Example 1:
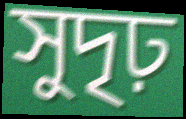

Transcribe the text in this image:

সুদৃঢ়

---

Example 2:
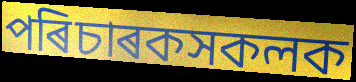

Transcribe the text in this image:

পৰিচাৰকসকলক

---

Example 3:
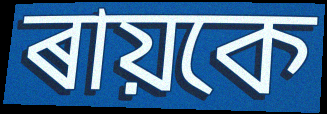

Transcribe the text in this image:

ৰায়কে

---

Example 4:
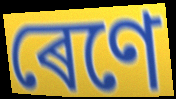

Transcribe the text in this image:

ৰেণে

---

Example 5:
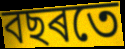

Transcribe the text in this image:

বছৰতে